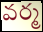
వర్మ